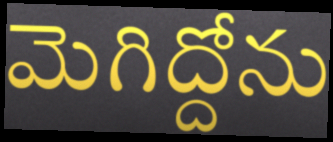
మెగిద్దోను